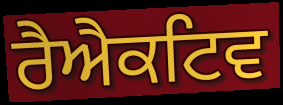
ਰੈਐਕਟਿਵ